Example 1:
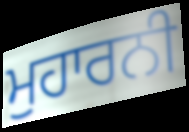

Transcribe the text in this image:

ਮੁਹਾਰਨੀ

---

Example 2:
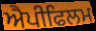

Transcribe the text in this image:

ਐਪੀਫਿਲਮ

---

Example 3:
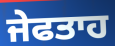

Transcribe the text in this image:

ਜੇਫਤਾਹ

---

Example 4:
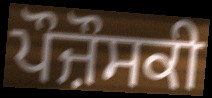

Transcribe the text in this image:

ਪੌਜ਼ੌਸਕੀ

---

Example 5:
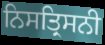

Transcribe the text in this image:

ਨਿਸਤ੍ਰਿਸਨੀ